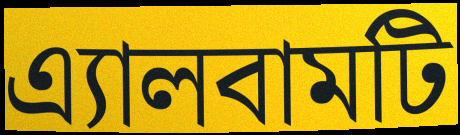
এ্যালবামটি